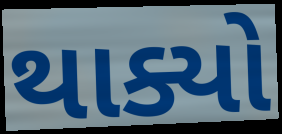
થાક્યો